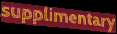
supplimentary